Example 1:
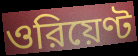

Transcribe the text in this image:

ওরিয়েণ্ট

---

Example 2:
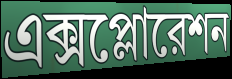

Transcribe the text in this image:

এক্সপ্লোরেশন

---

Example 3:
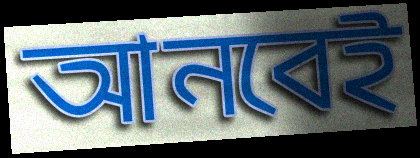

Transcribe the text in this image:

আনবেই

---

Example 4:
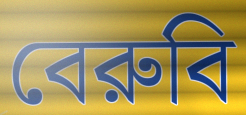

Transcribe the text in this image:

বেরুবি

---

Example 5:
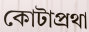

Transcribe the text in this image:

কোটাপ্রথা